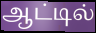
ஆட்டில்